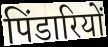
पिंडारियों